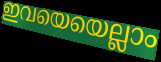
ഇവയെയെല്ലാം